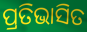
ପ୍ରତିଭାସିତ